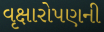
વૃક્ષારોપણની